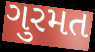
ગુરમત